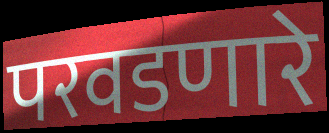
परवडणारे